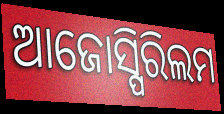
ଆଜୋସ୍ପିରିଲମ